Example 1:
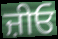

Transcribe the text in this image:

ਜ਼ੀਓ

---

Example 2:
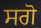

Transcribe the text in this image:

ਸਗੋ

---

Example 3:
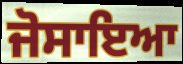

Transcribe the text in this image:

ਜੋਸਾਇਆ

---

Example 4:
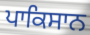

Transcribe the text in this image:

ਪਾਕਿਸਾਨ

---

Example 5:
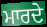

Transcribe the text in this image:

ਮਾਰਦੇ